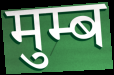
मुम्ब